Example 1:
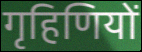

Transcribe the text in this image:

गृहिणियों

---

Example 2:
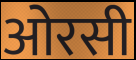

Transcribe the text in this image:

ओरसी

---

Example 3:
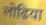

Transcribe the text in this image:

लोढिया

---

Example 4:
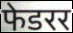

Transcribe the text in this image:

फेडरर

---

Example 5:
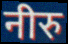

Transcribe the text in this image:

नीरु